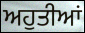
ਅਹੁਤੀਆਂ